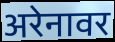
अरेनावर